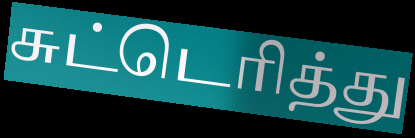
சுட்டெரித்து